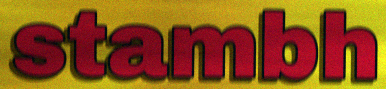
stambh